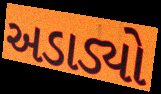
અડાડ્યો